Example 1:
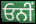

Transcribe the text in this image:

ਓਨੀਂ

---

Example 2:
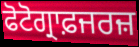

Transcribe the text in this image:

ਫੋਟੋਗ੍ਰਾਫ਼ਜਰਜ਼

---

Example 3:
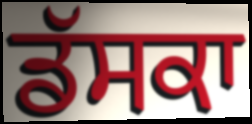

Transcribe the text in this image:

ਡੱਸਕਾ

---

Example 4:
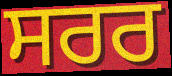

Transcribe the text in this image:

ਸਰਰ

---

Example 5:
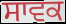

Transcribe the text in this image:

ਸਾਵਕ